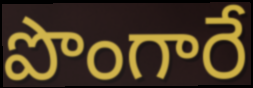
పొంగారే